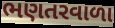
ભણતરવાળા